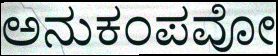
ಅನುಕಂಪವೋ